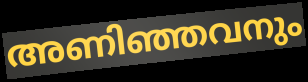
അണിഞ്ഞവനും